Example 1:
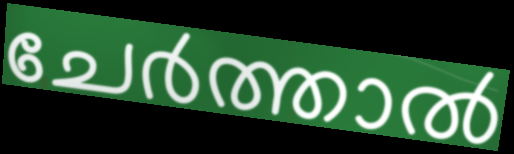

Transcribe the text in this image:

ചേർത്താൽ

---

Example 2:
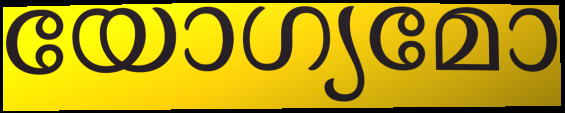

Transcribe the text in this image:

യോഗ്യമോ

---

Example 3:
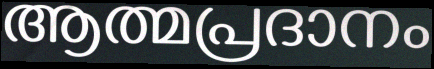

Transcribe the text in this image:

ആത്മപ്രദാനം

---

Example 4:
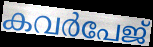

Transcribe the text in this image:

കവർപേജ്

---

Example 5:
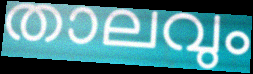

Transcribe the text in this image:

താലവും